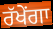
ਰੱਖੇਂਗਾ